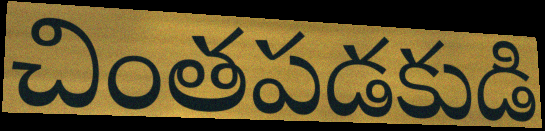
చింతపడకుడి